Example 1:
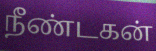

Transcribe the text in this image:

நீண்டகன்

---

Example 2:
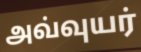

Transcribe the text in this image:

அவ்வுயர்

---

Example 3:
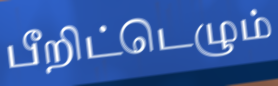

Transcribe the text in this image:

பீறிட்டெழும்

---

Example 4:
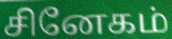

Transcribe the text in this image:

சினேகம்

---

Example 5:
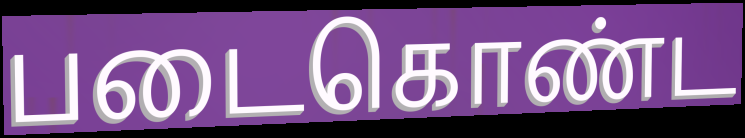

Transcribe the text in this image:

படைகொண்ட